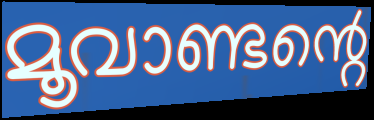
മൂവാണ്ടന്റെ